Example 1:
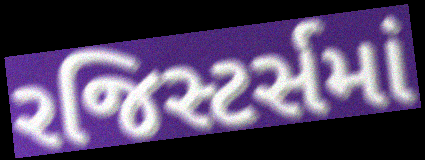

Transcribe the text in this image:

રજિસ્ટર્સમાં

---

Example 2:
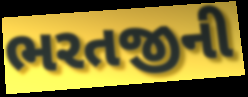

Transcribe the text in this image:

ભરતજીની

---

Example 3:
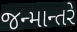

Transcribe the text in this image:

જન્માન્તરે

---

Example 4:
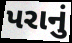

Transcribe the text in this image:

પરાનું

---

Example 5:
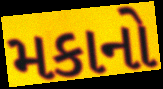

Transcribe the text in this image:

મકાનો